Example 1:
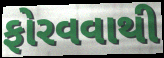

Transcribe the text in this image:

ફોરવવાથી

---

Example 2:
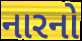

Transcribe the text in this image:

નારનો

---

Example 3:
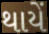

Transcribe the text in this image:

થાયેં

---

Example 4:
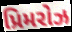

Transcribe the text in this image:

પ્રિમરોઝ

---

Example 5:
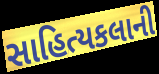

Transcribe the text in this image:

સાહિત્યકલાની